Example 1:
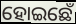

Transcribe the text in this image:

ହୋଇଛେଁ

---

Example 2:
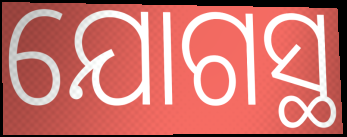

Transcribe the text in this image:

ଯୋଗସ୍ଥ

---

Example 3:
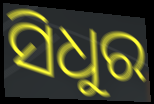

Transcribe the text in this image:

ସିଧୁର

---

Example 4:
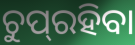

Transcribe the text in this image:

ଚୁପ୍‌ରହିବା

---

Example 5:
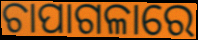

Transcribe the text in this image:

ଚାପାଗଳାରେ